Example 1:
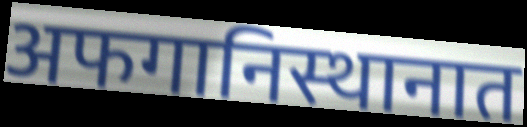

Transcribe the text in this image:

अफगानिस्थानात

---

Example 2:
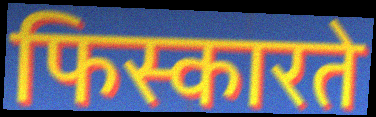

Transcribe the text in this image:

फिस्कारते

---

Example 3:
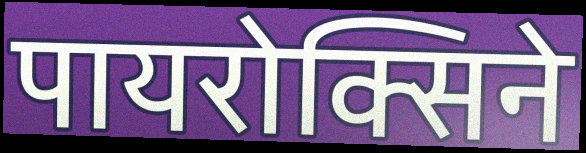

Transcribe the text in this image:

पायरोक्सिने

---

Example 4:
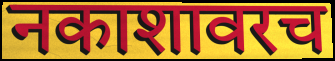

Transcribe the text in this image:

नकाशावरच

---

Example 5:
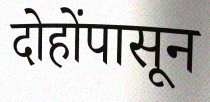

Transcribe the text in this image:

दोहोंपासून